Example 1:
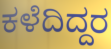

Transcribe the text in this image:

ಕಳೆದಿದ್ದರ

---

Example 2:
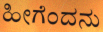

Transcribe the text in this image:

ಹೀಗೆಂದನು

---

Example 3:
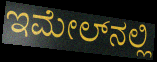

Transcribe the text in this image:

ಇಮೇಲ್‌ನಲ್ಲಿ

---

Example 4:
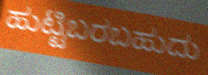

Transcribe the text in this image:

ಹುಟ್ಟಿಬರಬಹುದು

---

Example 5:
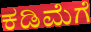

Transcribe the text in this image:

ಕಡಿಮೆಗೆ